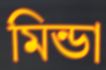
মিন্ডা